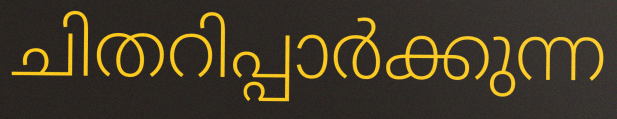
ചിതറിപ്പാർക്കുന്ന